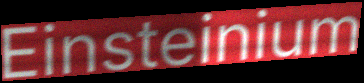
Einsteinium